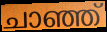
ചാഞ്ഞ്